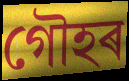
গৌহৰ